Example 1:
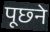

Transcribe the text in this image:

पूछ्ने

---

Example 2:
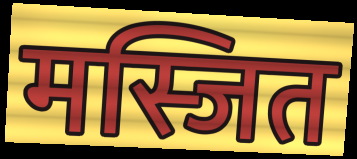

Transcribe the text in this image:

मस्जित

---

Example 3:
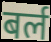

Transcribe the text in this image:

बर्ल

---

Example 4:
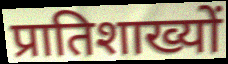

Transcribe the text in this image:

प्रातिशाख्यों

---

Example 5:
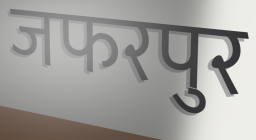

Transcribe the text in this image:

जफरपुर